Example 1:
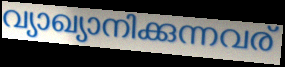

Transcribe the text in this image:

വ്യാഖ്യാനിക്കുന്നവര്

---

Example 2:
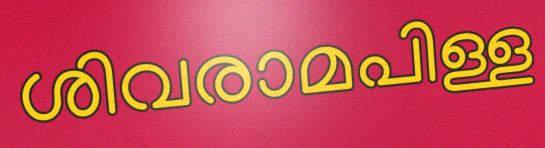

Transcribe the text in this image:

ശിവരാമപിള്ള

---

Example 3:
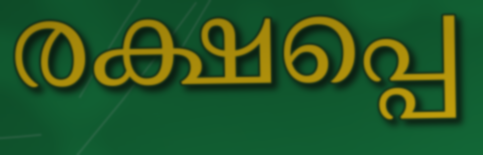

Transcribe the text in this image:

രക്ഷപ്പെ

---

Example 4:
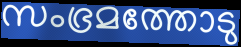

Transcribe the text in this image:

സംഭ്രമത്തോടു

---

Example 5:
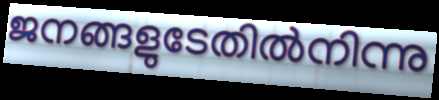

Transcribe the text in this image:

ജനങ്ങളുടേതിൽനിന്നു